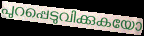
പുറപ്പെടുവിക്കുകയോ